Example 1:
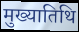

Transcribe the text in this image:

मुख्यातिथि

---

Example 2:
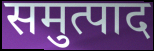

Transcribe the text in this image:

समुत्पाद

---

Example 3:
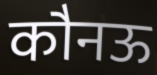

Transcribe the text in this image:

कौनऊ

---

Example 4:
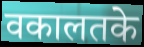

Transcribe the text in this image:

वकालतके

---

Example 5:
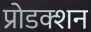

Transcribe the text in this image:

प्रोडक्‍शन